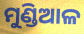
ମୁଣ୍ଡିଆଳ